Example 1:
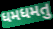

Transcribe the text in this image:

ધમધમતુ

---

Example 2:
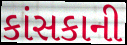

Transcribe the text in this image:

કાંસકાની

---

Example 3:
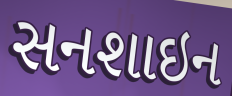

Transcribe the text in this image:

સનશાઇન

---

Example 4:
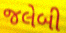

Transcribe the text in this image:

જલેબી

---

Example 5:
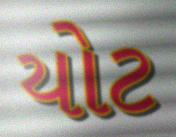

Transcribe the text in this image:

યોટ